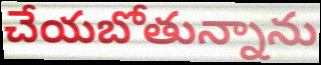
చేయబోతున్నాను